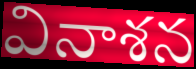
వినాశన